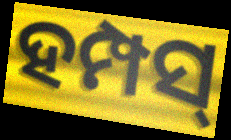
ହମ୍ପସ୍